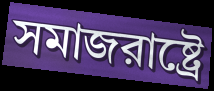
সমাজরাষ্ট্রে